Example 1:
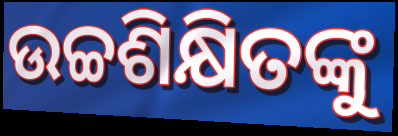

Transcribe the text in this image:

ଉଚ୍ଚଶିକ୍ଷିତଙ୍କୁ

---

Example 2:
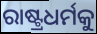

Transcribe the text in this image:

ରାଷ୍ଟ୍ରଧର୍ମକୁ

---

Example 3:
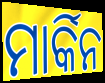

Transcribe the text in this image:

ମାର୍କିନ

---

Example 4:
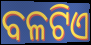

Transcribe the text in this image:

ବଳଟିଏ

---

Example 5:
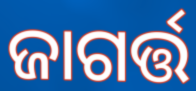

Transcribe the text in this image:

ଜାଗର୍ତ୍ତ